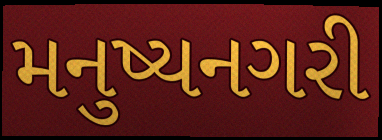
મનુષ્યનગરી